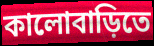
কালোবাড়িতে